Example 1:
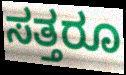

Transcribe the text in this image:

ಸತ್ತರೂ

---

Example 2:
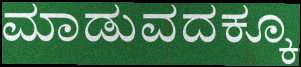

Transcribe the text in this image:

ಮಾಡುವದಕ್ಕೂ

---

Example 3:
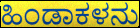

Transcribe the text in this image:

ಹಿಂಡಾಕಳನು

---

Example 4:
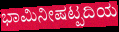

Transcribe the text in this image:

ಭಾಮಿನೀಷಟ್ಪದಿಯ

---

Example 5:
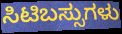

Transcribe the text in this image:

ಸಿಟಿಬಸ್ಸುಗಳು